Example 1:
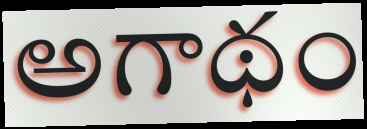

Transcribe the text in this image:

అగాథం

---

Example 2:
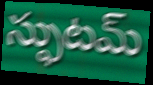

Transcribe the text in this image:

స్ఫుటమ్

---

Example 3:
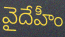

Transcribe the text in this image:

వైదేహీం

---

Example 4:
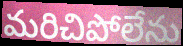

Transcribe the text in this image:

మరిచిపోలేను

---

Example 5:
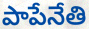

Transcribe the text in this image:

పాపేనేతి